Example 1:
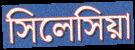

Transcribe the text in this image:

সিলেসিয়া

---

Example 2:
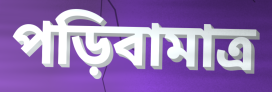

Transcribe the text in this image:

পড়িবামাত্র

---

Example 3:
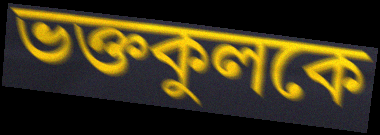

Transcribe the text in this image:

ভক্তকুলকে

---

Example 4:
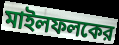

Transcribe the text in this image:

মাইলফলকের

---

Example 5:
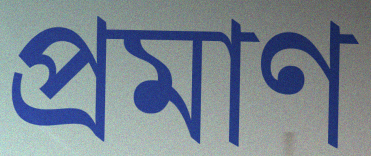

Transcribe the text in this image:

প্রমাণ